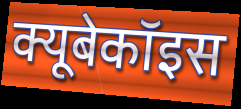
क्यूबेकॉइस